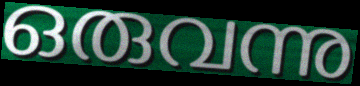
ഒരുവന്നു